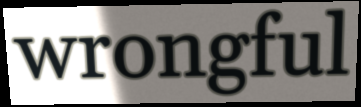
wrongful